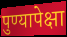
पुण्यापेक्षा